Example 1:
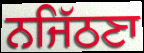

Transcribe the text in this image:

ਨਜਿੱਠਣਾ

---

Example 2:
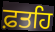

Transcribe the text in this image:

ਫ਼ਤਹਿ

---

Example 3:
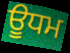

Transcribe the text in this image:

ਊਧਮ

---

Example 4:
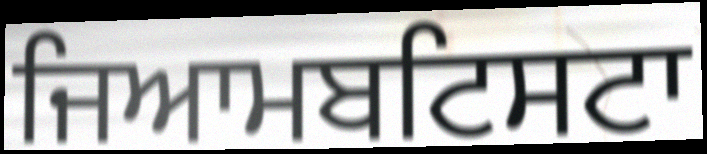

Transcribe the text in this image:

ਜਿਆਮਬਟਿਸਟਾ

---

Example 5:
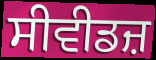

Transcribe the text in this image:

ਸੀਵੀਡਜ਼